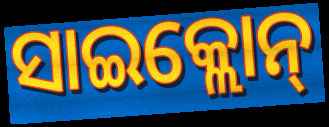
ସାଇକ୍ଲୋନ୍